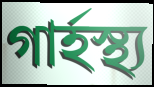
গাৰ্হস্থ্য